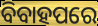
ବିବାହପରେ